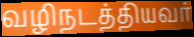
வழிநடத்தியவர்